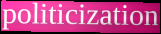
politicization